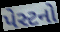
પેસ્ટનો